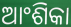
ଆଂଶିକା